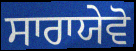
ਸਾਰਾਯੇਵੋ